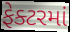
ફેક્ટરમાં